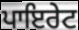
ਪਾਇਰੇਟ